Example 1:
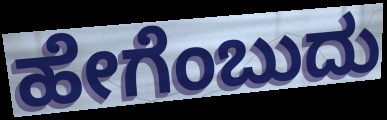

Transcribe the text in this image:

ಹೇಗೆಂಬುದು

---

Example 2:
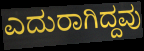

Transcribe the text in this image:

ಎದುರಾಗಿದ್ದವು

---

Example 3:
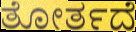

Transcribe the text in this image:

ತೋರ್ತದೆ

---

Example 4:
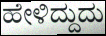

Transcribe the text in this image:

ಹೇಳಿದ್ದುದು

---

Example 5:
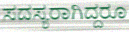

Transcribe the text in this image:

ಸದಸ್ಯರಾಗಿದ್ದರೂ